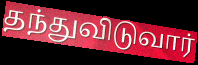
தந்துவிடுவார்